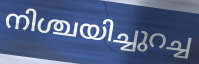
നിശ്ചയിച്ചുറച്ച